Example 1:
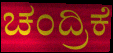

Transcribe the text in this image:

ಚಂದ್ರಿಕೆ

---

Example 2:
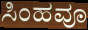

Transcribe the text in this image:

ಸಿಂಹವೂ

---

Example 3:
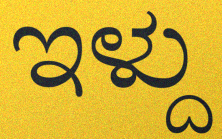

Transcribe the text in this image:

ಇಳ್ದು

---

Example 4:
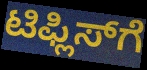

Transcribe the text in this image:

ಟಿಫ್ಲಿಸ್‍ಗೆ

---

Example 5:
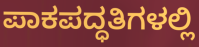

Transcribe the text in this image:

ಪಾಕಪದ್ಧತಿಗಳಲ್ಲಿ